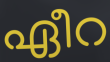
ഏീറ